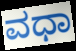
ವಧಾ